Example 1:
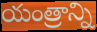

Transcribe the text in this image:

యంత్రాన్ని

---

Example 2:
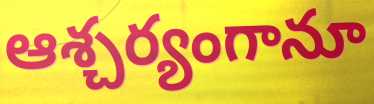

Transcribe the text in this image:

ఆశ్చర్యంగానూ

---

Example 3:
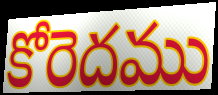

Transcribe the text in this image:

కోరెదము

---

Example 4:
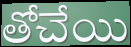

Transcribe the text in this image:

తోచేయి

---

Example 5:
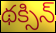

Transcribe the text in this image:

థక్సిన్